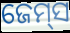
ଜେମ୍‍ସ